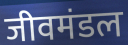
जीवमंडल